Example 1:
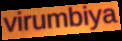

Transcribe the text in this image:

virumbiya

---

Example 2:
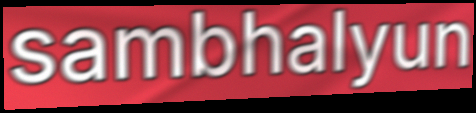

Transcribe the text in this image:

sambhalyun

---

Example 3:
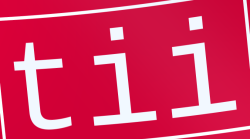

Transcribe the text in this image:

tii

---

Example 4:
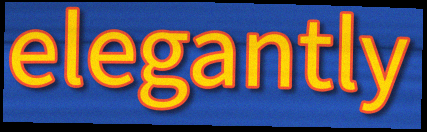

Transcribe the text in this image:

elegantly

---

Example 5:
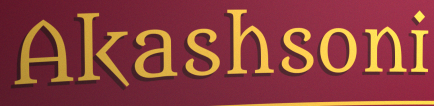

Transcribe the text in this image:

Akashsoni